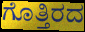
ಗೊತ್ತಿರದ